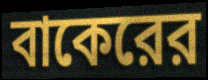
বাকেরের